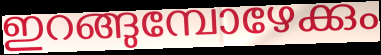
ഇറങ്ങുമ്പോഴേക്കും